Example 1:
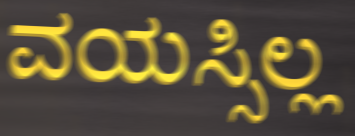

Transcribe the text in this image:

ವಯಸ್ಸಿಲ್ಲ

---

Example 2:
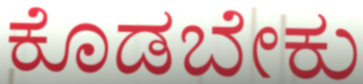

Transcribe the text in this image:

ಕೊಡಬೇಕು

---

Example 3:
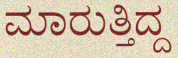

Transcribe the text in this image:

ಮಾರುತ್ತಿದ್ದ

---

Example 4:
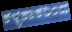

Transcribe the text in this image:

ಕಳ್ಳಕಾಕರಿಂದ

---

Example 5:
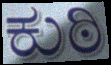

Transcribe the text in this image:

ಕುಠಿ